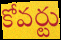
కోవర్టు